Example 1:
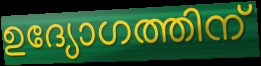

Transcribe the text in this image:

ഉദ്യോഗത്തിന്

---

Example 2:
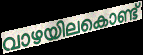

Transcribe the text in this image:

വാഴയിലകൊണ്ട്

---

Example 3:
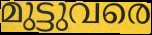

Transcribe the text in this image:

മുട്ടുവരെ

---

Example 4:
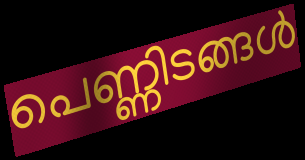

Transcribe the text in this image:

പെണ്ണിടങ്ങൾ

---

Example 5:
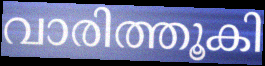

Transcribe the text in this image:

വാരിത്തൂകി